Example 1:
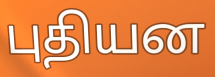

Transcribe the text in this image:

புதியன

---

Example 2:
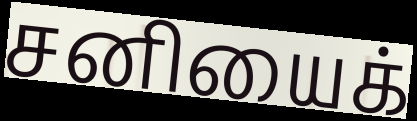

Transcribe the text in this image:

சனியைக்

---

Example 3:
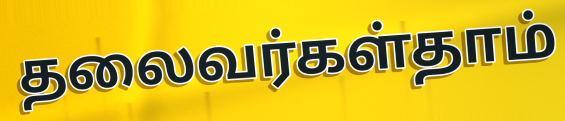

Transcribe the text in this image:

தலைவர்கள்தாம்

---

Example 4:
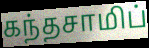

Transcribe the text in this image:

கந்தசாமிப்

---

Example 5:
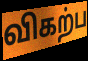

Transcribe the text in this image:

விகற்ப